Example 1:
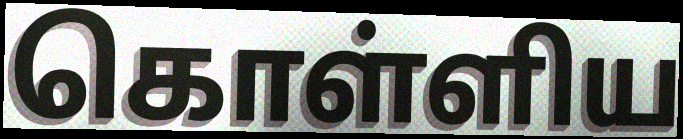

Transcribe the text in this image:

கொள்ளிய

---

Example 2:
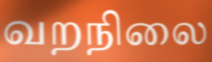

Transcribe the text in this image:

வறநிலை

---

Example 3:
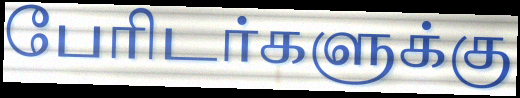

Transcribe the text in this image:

பேரிடர்களுக்கு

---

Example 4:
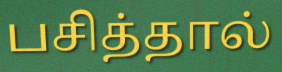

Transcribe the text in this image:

பசித்தால்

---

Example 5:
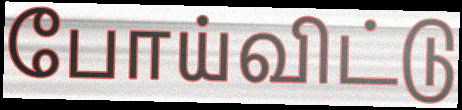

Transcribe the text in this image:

போய்விட்டு